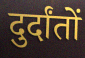
दुर्दांतों